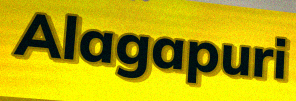
Alagapuri